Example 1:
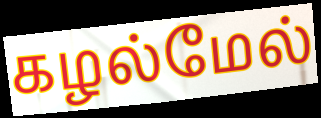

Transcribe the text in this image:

கழல்மேல்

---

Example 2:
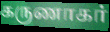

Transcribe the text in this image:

கருணாகர்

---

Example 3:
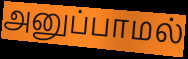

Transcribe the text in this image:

அனுப்பாமல்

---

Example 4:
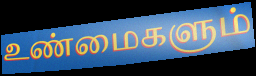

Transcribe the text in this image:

உண்மைகளும்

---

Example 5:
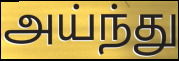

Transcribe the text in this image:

அய்ந்து